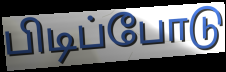
பிடிப்போடு